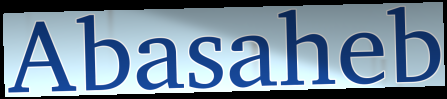
Abasaheb